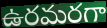
ఉరమరగా